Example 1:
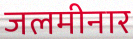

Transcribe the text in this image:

जलमीनार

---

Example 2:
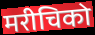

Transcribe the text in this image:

मरीचिको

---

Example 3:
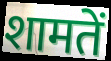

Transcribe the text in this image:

शामतें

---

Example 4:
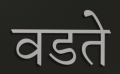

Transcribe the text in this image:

वडते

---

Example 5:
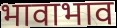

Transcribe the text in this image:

भावाभाव